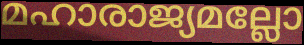
മഹാരാജ്യമല്ലോ